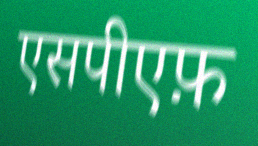
एसपीएफ़